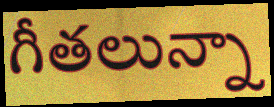
గీతలున్నా